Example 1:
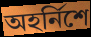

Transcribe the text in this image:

অহৰ্নিশে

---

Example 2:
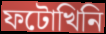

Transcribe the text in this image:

ফটোখিনি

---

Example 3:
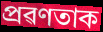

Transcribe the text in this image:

প্ৰৱণতাক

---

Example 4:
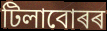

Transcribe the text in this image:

টিলাবোৰৰ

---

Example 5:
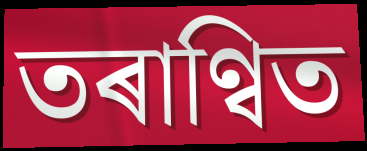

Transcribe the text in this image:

তৰাণ্বিত